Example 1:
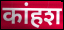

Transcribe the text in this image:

कांहश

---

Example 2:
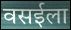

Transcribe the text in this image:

वसईला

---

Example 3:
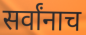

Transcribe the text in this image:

सर्वांनाच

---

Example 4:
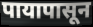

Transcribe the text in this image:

पायापासून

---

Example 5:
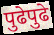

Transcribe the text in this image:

पुढेपुढे